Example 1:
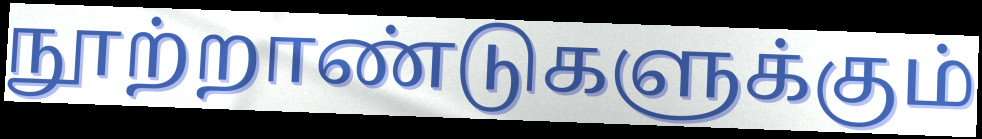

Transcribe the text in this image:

நூற்றாண்டுகளுக்கும்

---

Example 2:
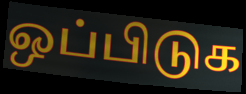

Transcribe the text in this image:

ஒப்பிடுக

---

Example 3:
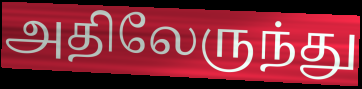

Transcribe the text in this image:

அதிலேருந்து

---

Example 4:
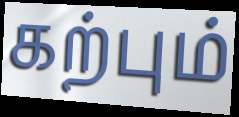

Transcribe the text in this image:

கற்பும்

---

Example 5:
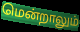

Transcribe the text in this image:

மென்றாலும்